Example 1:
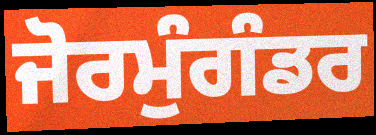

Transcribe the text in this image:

ਜੋਰਮੁੰਗੰਡਰ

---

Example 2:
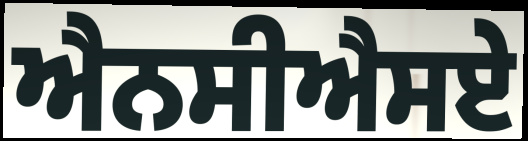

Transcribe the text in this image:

ਐਨਸੀਐਸਏ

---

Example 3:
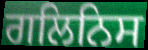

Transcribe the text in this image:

ਗਲਿਨਿਸ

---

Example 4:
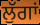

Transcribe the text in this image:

ਲੁੱਗਾਂ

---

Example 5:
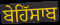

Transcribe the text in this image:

ਬੇਹਿੱਸਾਬ